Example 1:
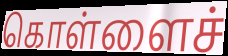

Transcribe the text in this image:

கொள்ளைச்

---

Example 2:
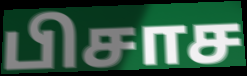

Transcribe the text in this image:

பிசாச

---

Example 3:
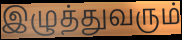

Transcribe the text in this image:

இழுத்துவரும்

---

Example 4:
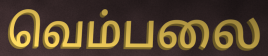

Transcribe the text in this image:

வெம்பலை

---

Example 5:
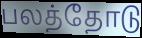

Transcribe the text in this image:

பலத்தோடு